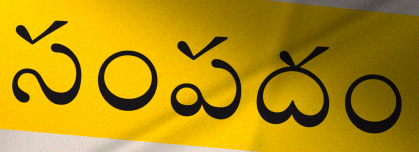
సంపదం